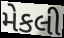
મેકલી